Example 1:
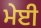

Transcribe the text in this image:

ਮੇਈ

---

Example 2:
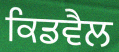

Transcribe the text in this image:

ਕਿਡਵੈਲ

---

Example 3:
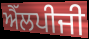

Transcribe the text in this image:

ਐੱਲਪੀਜੀ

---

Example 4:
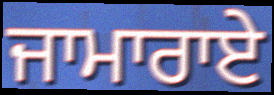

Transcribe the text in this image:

ਜਾਮਾਰਾਏ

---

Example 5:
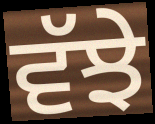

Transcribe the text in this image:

ਵੱਝੇ